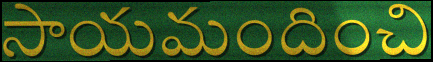
సాయమందించి